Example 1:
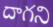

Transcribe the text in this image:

దాగని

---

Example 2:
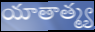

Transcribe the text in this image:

యాతాత్మ్య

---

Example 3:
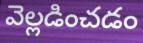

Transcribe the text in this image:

వెల్లడించడం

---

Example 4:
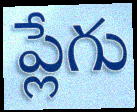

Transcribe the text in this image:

ప్లేగు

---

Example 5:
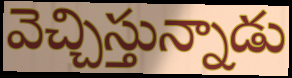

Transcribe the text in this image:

వెచ్చిస్తున్నాడు